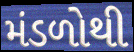
મંડળોથી